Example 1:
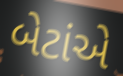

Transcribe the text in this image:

બેટાંએ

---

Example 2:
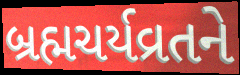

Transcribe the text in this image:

બ્રહ્મચર્યવ્રતને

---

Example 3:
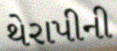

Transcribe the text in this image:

થેરાપીની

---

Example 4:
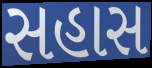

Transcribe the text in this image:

સહાસ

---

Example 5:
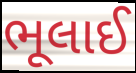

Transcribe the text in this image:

ભૂલાઈ